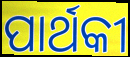
ପାର୍ଥକୀ